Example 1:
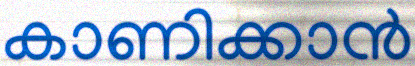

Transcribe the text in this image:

കാണിക്കാൻ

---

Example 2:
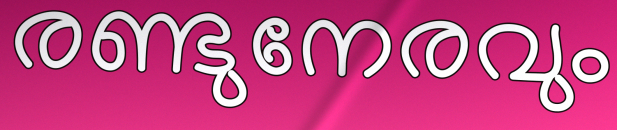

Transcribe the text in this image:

രണ്ടുനേരവും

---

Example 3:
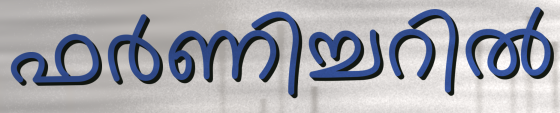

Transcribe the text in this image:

ഫർണിച്ചറിൽ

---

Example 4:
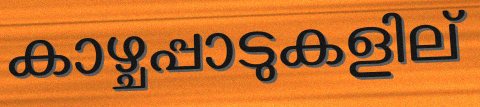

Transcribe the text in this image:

കാഴ്ചപ്പാടുകളില്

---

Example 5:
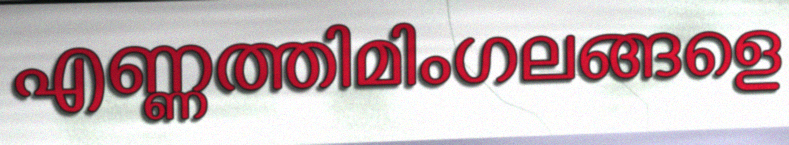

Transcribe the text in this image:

എണ്ണത്തിമിംഗലങ്ങളെ